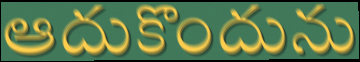
ఆదుకొందును